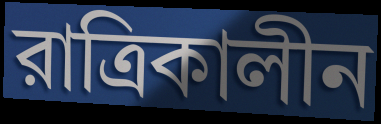
রাত্রিকালীন